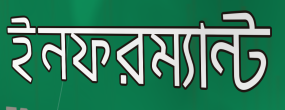
ইনফরম্যান্ট